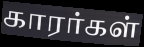
காரர்கள்